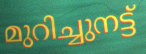
മുറിച്ചുനട്ട്